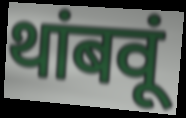
थांबवूं